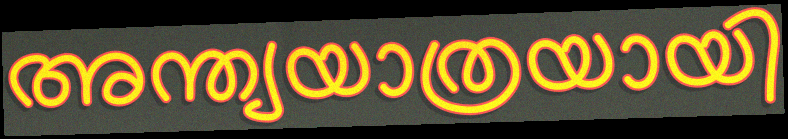
അന്ത്യയാത്രയായി